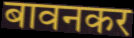
बावनकर